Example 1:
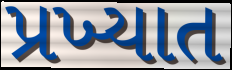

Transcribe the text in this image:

પ્રખ્યાત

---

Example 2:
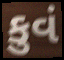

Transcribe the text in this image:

કુવં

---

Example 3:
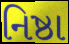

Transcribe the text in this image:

નિષ્ઠા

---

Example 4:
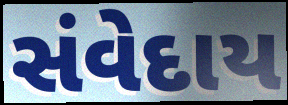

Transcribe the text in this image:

સંવેદાય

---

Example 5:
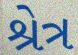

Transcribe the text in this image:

શ્રેત્ર